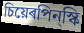
চিয়েৰপিন্‌স্কি